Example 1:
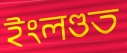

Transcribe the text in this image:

ইংলণ্ডত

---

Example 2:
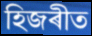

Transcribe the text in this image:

হিজৰীত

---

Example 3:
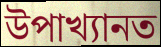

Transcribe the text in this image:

উপাখ্যানত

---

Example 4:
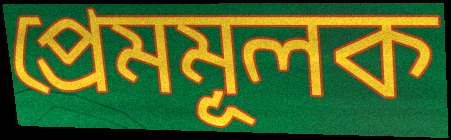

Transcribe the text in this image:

প্ৰেমমূলক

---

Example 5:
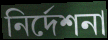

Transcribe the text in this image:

নিৰ্দেশনা